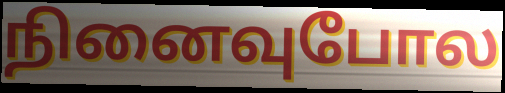
நினைவுபோல